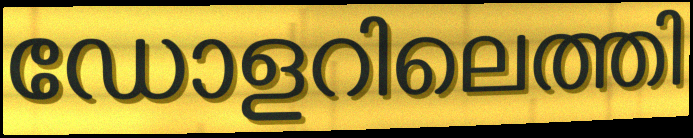
ഡോളറിലെത്തി